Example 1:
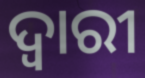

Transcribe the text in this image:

ଦ୍ଵାରୀ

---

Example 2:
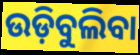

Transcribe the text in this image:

ଉଡ଼ିବୁଲିବା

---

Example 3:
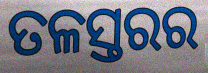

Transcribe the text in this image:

ତଳସ୍ତରର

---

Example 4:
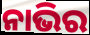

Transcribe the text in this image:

ନାଭିର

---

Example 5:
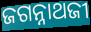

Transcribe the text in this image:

ଜଗନ୍ନାଥଜୀ